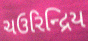
ચઉરિન્દ્રિય